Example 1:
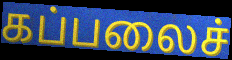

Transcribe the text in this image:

கப்பலைச்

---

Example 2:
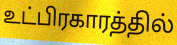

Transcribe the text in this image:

உட்பிரகாரத்தில்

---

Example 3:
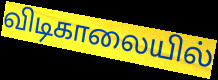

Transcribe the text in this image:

விடிகாலையில்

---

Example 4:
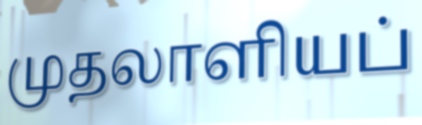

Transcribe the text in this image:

முதலாளியப்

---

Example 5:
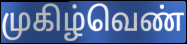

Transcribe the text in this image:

முகிழ்வெண்